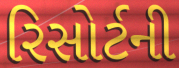
રિસોર્ટની